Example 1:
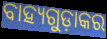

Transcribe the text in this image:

ବାହ୍ୟଗୁଡ଼ାକର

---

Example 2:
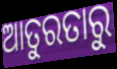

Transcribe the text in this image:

ଆତୁରତାରୁ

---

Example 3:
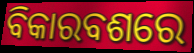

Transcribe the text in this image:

ବିକାରବଶରେ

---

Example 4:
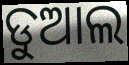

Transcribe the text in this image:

ଡୁଆଲ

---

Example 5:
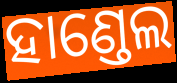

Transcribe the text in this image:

ହାଣ୍ଡେଲ